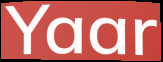
Yaar